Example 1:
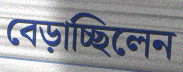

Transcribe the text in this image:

বেড়াচ্ছিলেন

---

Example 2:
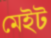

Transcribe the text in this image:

মেইট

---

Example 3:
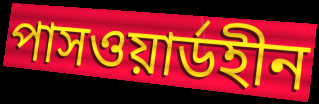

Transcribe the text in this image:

পাসওয়ার্ডহীন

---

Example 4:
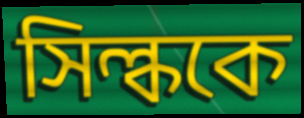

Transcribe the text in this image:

সিল্ককে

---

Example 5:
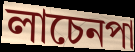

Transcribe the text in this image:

লাচেনপা